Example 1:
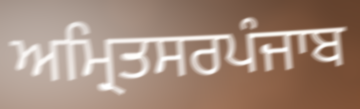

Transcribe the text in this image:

ਅਮ੍ਰਿਤਸਰਪੰਜਾਬ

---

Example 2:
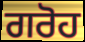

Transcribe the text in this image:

ਗਰੋਹ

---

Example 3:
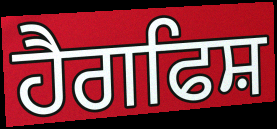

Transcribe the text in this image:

ਹੈਗਫਿਸ਼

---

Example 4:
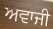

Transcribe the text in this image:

ਅਵਾਜੀ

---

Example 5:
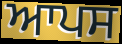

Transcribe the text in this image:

ਆਪਸ